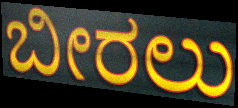
ಬೀರಲು